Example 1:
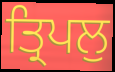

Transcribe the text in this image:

ਤ੍ਰਿਪਲੁ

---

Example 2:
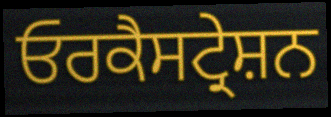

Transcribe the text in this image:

ਓਰਕੈਸਟ੍ਰੇਸ਼ਨ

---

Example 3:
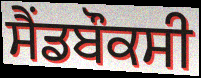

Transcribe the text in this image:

ਸੈਂਡਬੌਕਸੀ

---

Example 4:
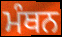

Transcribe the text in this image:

ਮੰਥਨ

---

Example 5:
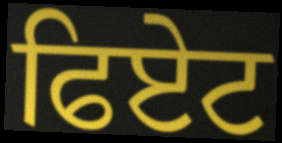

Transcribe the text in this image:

ਫਿਏਟ